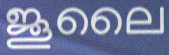
ജൂലൈ